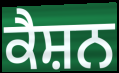
ਕੈਸ਼ਨ